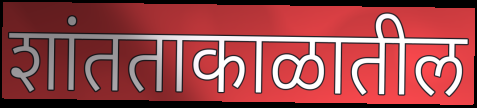
शांतताकाळातील